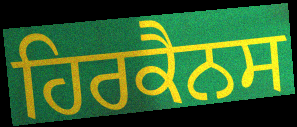
ਹਿਰਕੈਨਸ